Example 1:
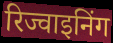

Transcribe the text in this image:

रिज्वाइनिंग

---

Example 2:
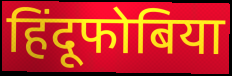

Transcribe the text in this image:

हिंदूफोबिया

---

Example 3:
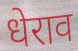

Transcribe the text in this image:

धेराव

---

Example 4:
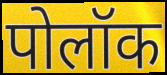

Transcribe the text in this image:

पोलॉक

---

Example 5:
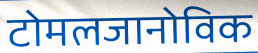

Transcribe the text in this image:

टोमलजानोविक